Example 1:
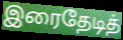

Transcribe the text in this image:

இரைதேடித்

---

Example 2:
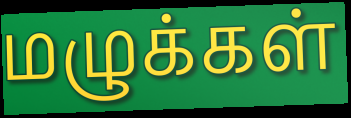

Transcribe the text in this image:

மழுக்கள்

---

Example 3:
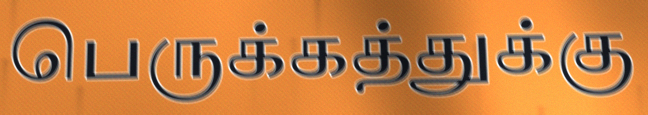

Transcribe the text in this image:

பெருக்கத்துக்கு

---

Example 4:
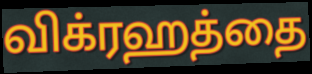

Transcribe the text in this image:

விக்ரஹத்தை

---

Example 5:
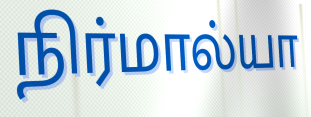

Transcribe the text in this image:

நிர்மால்யா